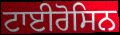
ਟਾਈਰੋਸਿਨ